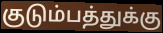
குடும்பத்துக்கு